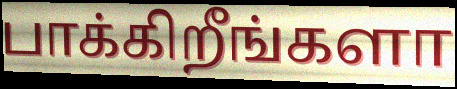
பாக்கிறீங்களா